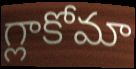
గ్లాకోమా